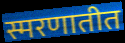
स्मरणातीत